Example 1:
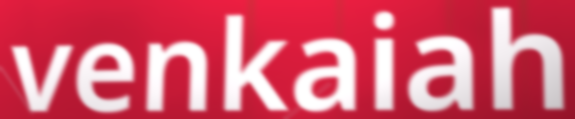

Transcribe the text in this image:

venkaiah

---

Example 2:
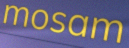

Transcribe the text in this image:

mosam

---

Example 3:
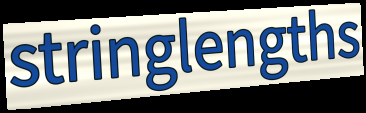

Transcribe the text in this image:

stringlengths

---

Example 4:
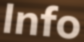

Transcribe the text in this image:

Info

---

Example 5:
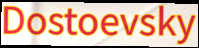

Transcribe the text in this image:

Dostoevsky